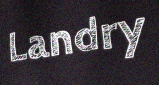
Landry